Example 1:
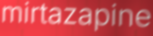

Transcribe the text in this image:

mirtazapine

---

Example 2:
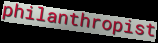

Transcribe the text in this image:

philanthropist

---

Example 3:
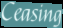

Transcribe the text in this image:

Ceasing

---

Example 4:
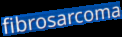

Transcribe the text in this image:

fibrosarcoma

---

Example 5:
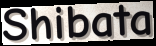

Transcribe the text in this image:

Shibata